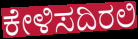
ಕೇಳಿಸದಿರಲಿ